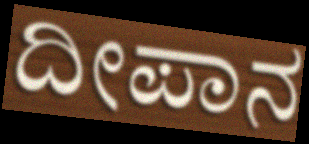
ದೀಪಾನ